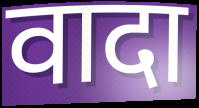
वादा